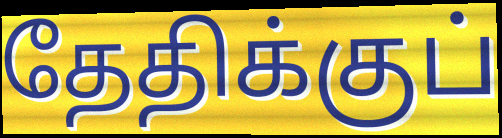
தேதிக்குப்